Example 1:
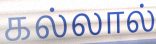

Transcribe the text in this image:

கல்லால்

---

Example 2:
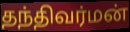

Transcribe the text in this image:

தந்திவர்மன்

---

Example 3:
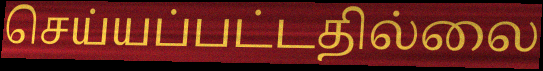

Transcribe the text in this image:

செய்யப்பட்டதில்லை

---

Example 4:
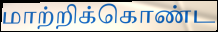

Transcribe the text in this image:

மாற்றிக்கொண்ட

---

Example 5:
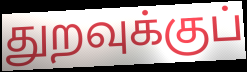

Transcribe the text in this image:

துறவுக்குப்